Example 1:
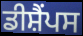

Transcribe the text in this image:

ਡੀਸ਼ੈਂਪਸ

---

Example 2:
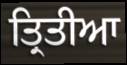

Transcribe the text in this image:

ਤ੍ਰਿਤੀਆ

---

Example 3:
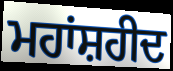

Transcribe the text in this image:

ਮਹਾਂਸ਼ਹੀਦ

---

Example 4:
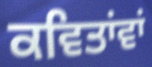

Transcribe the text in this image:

ਕਵਿਤਾਂਵਾਂ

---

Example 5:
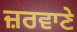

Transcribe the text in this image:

ਜ਼ਰਵਾਣੇ